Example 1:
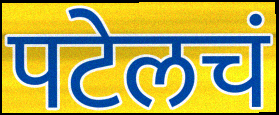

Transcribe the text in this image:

पटेलचं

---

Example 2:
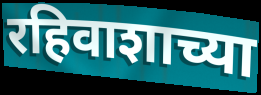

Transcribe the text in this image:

रहिवाशाच्या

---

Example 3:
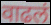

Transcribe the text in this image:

वाढलं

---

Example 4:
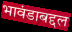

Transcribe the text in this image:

भावंडाबद्दल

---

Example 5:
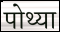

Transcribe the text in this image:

पोथ्या